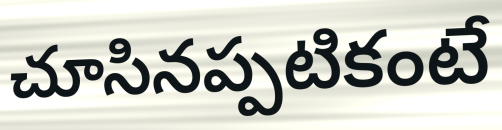
చూసినప్పటికంటే